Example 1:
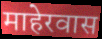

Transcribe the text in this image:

माहेरवास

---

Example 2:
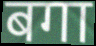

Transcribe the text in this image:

बगा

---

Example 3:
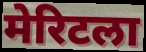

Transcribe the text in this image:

मेरिटला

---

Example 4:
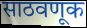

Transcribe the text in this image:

साठवणूक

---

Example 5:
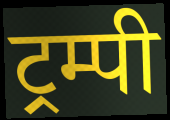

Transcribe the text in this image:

ट्रम्पी